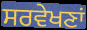
ਸਰਵੇਖਣਾਂ